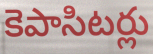
కెపాసిటర్లు